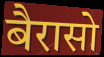
बैरासो